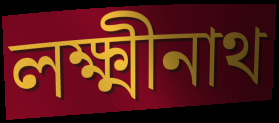
লক্ষ্মীনাথ